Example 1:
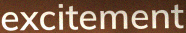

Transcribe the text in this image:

excitement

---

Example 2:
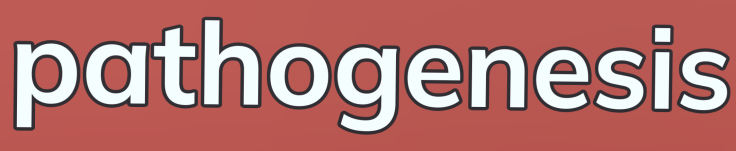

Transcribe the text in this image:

pathogenesis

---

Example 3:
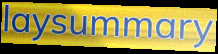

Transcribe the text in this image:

laysummary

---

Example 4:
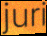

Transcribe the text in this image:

juri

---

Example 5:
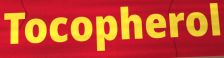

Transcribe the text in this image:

Tocopherol